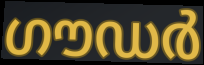
ഗൗഡർ